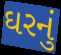
ઘરનું